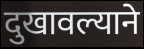
दुखावल्याने